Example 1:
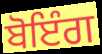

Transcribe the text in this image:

ਬੋਇੰਗ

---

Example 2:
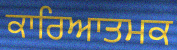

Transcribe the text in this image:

ਕਾਰਿਆਤਮਕ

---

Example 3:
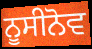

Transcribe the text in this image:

ਨੂਸੀਨੋਵ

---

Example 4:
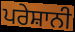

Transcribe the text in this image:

ਪਰੇਸ਼ਾਨੀ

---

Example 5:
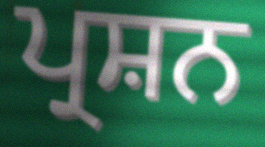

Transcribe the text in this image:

ਪ੍ਰਸ਼ਨ